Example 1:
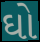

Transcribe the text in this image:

ઘો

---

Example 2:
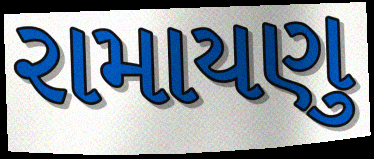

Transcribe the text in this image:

રામાયણુ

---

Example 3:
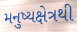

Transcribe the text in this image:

મનુષ્યક્ષેત્રથી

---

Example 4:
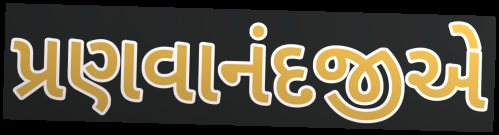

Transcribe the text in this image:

પ્રણવાનંદજીએ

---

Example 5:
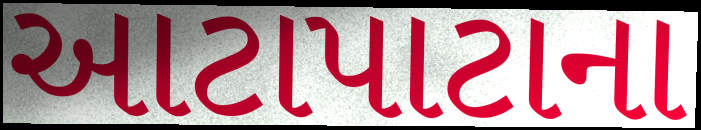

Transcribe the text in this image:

આટાપાટાના